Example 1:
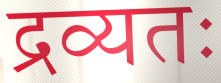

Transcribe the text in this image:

द्रव्यतः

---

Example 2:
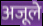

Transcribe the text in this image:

अजूले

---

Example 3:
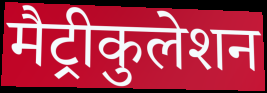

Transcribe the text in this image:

मैट्रीकुलेशन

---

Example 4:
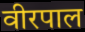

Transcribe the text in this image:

वीरपाल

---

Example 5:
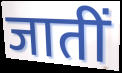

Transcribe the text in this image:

जातीं